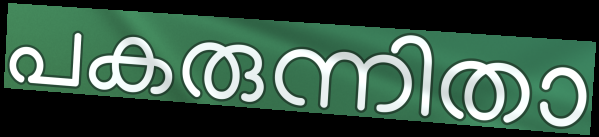
പകരുന്നിതാ